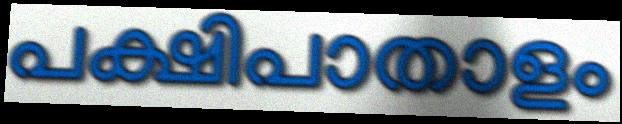
പക്ഷിപാതാളം